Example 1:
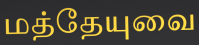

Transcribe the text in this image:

மத்தேயுவை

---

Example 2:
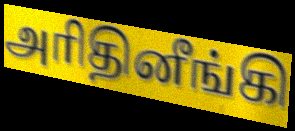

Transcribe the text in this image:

அரிதினீங்கி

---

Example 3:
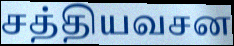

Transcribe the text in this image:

சத்தியவசன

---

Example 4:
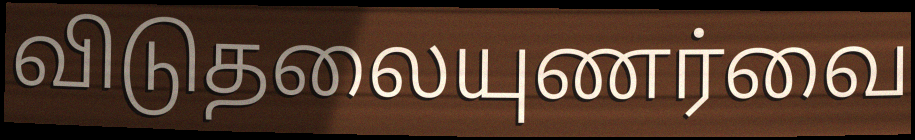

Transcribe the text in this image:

விடுதலையுணர்வை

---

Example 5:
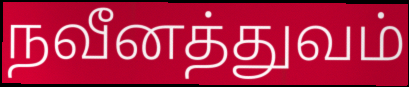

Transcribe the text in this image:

நவீனத்துவம்